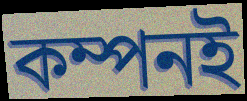
কম্পনই